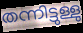
തന്നിട്ടുള്ളു